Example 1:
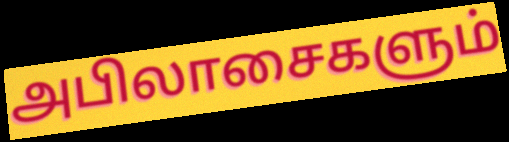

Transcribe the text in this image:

அபிலாசைகளும்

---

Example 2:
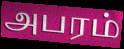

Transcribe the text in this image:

அபரம்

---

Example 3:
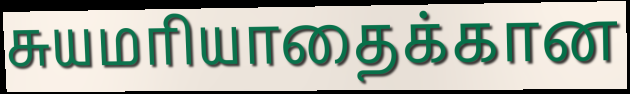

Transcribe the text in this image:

சுயமரியாதைக்கான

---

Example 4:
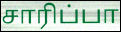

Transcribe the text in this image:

சாரிப்பா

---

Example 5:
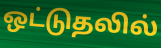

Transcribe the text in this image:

ஒட்டுதலில்